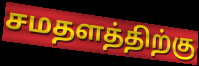
சமதளத்திற்கு